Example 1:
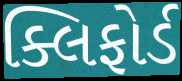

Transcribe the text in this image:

ક્લિફોર્ડ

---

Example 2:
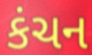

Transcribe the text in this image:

કંચન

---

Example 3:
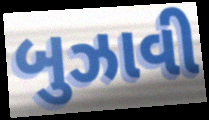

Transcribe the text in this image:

બુઝાવી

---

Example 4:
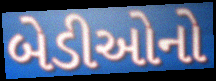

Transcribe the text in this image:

બેડીઓનો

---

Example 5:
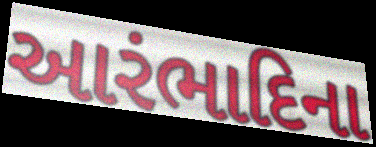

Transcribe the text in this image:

આરંભાદિના